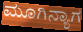
ಮೂಗಿನ್ಯಾಗ